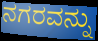
ನಗರವನ್ನು